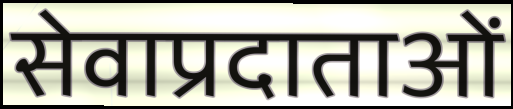
सेवाप्रदाताओं